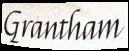
Grantham